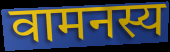
वामनस्य